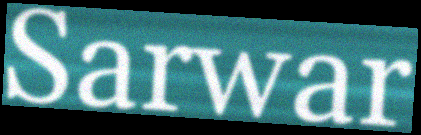
Sarwar